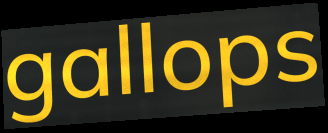
gallops